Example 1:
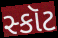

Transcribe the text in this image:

સ્કૉટ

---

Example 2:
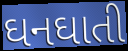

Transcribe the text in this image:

ઘનઘાતી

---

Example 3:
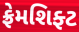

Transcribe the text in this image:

ફ્રેમશિફ્ટ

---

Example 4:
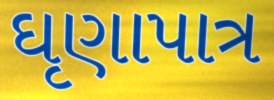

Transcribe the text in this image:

ઘૃણાપાત્ર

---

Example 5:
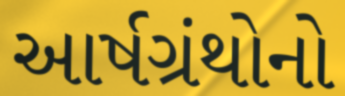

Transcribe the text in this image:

આર્ષગ્રંથોનો